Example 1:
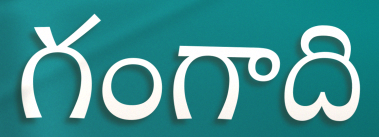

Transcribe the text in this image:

గంగాది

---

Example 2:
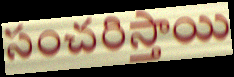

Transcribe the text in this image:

సంచరిస్తాయి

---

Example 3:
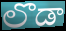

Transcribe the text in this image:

లొడా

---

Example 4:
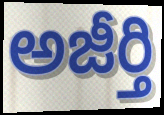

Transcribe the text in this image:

అజీర్తి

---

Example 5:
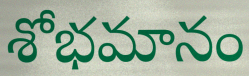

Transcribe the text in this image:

శోభమానం